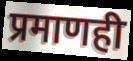
प्रमाणही